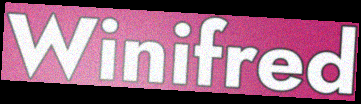
Winifred